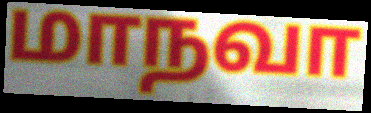
மாநவா